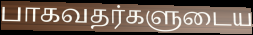
பாகவதர்களுடைய